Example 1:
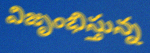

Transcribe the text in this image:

విజృంభిస్తున్న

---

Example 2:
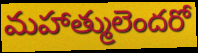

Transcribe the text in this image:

మహాత్ములెందరో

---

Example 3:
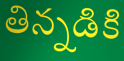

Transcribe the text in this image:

తిన్నడికి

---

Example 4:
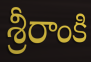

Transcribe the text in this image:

శ్రీరాంకి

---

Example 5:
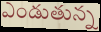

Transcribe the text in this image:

ఎండుతున్న